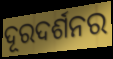
ଦୂରଦର୍ଶନର